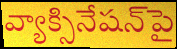
వ్యాక్సినేషన్‌పై